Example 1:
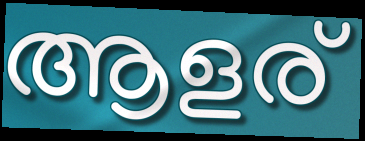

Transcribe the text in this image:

ആളര്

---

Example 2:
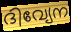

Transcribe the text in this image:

ദിവ്യേന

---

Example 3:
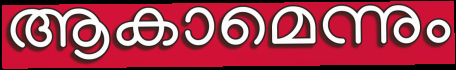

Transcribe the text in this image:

ആകാമെന്നും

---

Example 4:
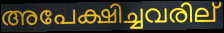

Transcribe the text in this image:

അപേക്ഷിച്ചവരില്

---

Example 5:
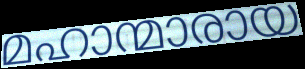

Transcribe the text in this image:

മഹാന്മാരായ